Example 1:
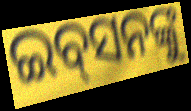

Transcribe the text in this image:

ଇବ୍‌ସନଙ୍କୁ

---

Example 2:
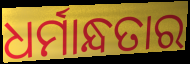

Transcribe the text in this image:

ଧର୍ମାନ୍ଧତାର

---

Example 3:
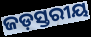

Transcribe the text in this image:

ଜଡ଼ସ୍ତରୀୟ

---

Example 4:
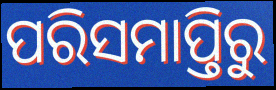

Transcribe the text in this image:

ପରିସମାପ୍ତିରୁ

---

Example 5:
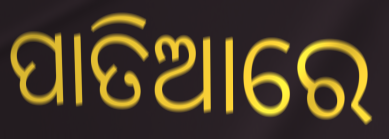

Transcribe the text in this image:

ପାତିଆରେ